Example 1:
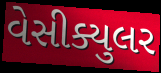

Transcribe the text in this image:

વેસીક્યુલર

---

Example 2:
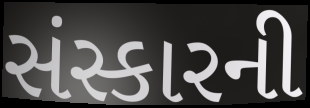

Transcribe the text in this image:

સંસ્કારની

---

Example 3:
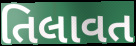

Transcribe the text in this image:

તિલાવત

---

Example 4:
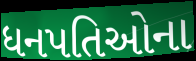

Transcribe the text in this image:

ધનપતિઓના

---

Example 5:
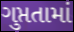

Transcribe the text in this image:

ગુપ્તતામાં